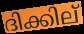
ദിക്കില്